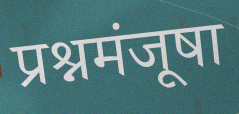
प्रश्नमंजूषा